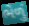
ભેળું